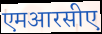
एमआरसीए